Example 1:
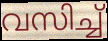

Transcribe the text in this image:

വസിച്ച്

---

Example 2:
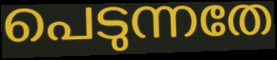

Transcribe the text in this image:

പെടുന്നതേ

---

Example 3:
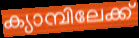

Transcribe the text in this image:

ക്യാമ്പിലേക്ക്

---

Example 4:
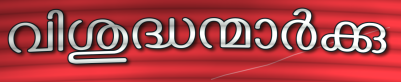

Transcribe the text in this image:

വിശുദ്ധന്മാർക്കു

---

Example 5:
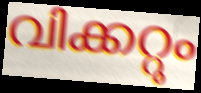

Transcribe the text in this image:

വിക്കറ്റും